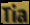
Tia